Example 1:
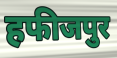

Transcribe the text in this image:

हफीजपुर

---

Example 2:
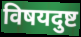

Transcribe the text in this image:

विषयदुष्ट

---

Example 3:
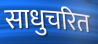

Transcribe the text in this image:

साधुचरित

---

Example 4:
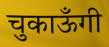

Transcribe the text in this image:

चुकाऊँगी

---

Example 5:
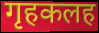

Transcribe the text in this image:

गृहकलह